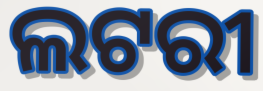
ଲଟରୀ